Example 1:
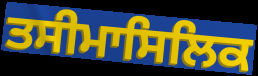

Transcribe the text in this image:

ਤਸੀਮਾਸਿਲਿਕ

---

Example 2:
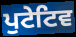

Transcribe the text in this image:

ਪੁਟੇਟਿਵ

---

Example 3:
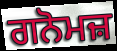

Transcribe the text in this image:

ਗਨੋਮਜ਼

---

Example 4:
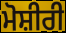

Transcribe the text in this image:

ਮੋਸ਼ੀਰੀ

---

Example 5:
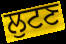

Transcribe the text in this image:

ਲੁਟਣ